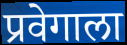
प्रवेगाला